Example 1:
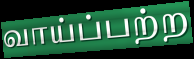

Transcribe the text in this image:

வாய்ப்பற்ற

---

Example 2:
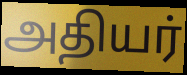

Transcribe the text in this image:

அதியர்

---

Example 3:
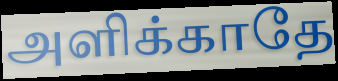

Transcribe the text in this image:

அளிக்காதே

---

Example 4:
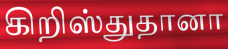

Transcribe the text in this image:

கிறிஸ்துதானா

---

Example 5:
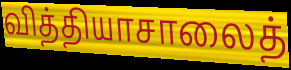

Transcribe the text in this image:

வித்தியாசாலைத்